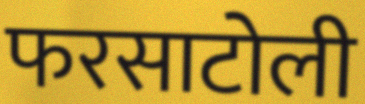
फरसाटोली